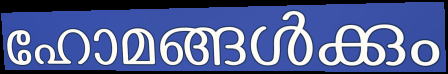
ഹോമങ്ങൾക്കും